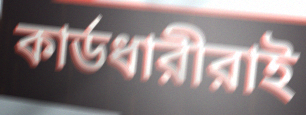
কার্ডধারীরাই